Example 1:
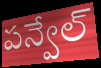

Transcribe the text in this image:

పన్వేల్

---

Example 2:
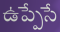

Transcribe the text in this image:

ఉప్పేసే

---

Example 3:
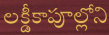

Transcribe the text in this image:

లక్డీకాపూల్లోని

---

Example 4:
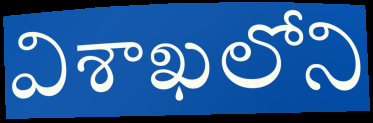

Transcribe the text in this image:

విశాఖలోని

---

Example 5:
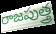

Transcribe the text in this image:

రాజపుత్త్ర